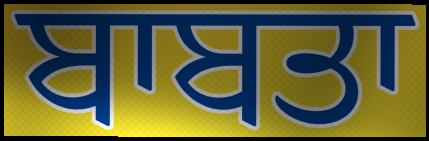
ਬਾਬਤਾ